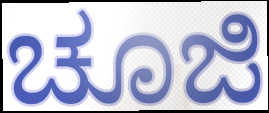
ಚೂಜಿ